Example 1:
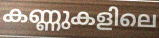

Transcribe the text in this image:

കണ്ണുകളിലെ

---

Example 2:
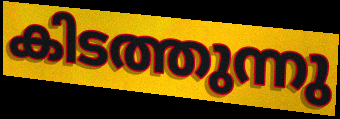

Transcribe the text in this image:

കിടത്തുന്നു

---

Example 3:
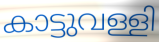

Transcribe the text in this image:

കാട്ടുവള്ളി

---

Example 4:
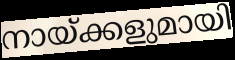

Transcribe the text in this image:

നായ്ക്കളുമായി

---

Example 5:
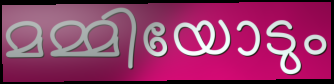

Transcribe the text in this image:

മമ്മിയോടും